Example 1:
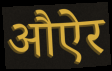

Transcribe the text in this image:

औऐर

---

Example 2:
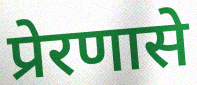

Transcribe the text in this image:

प्रेरणासे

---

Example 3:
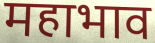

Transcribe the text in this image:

महाभाव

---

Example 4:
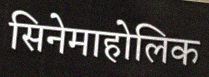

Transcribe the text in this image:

सिनेमाहोलिक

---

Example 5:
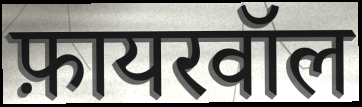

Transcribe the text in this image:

फ़ायरवॉल